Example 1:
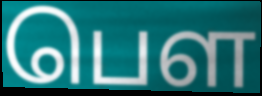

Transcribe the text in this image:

பெள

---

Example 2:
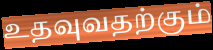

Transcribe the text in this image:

உதவுவதற்கும்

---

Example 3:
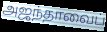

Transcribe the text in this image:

அஜந்தாவைப்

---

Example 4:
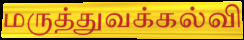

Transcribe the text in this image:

மருத்துவக்கல்வி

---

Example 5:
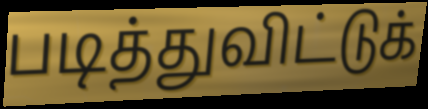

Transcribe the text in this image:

படித்துவிட்டுக்